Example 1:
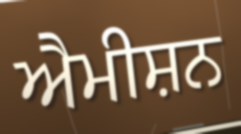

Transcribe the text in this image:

ਐਮੀਸ਼ਨ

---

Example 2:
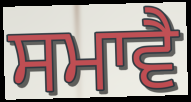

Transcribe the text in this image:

ਸਮਾਵੈ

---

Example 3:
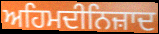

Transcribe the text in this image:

ਅਹਿਮਦੀਨਿਜ਼ਾਦ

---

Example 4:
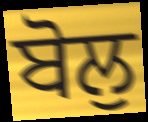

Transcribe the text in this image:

ਬੋਲੁ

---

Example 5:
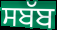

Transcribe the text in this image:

ਸਬੱਬ